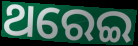
ଥରେଇ